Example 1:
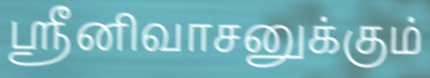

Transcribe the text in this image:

ஸ்ரீனிவாசனுக்கும்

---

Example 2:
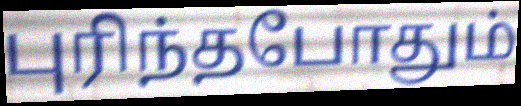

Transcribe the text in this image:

புரிந்தபோதும்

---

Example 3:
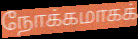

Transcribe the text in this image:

நோக்கமாகக்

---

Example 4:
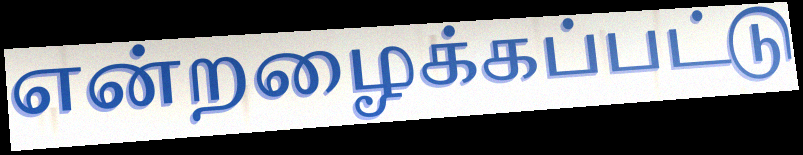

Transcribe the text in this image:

என்றழைக்கப்பட்டு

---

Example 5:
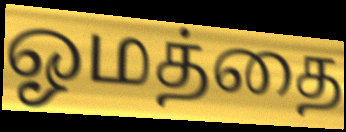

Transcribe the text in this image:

ஓமத்தை